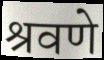
श्रवणे